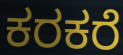
ಕರಕರೆ